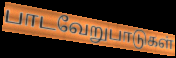
பாடவேறுபாடுகள்